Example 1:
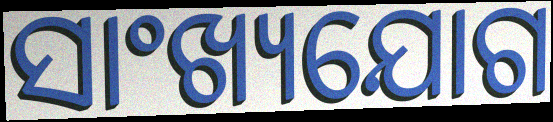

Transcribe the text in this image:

ସାଂଖ୍ୟଯୋଗ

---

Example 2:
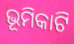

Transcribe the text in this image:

ଭୂମିକାଟି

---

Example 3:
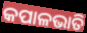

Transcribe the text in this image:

କପାଳଭାତି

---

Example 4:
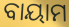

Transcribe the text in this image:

ବାୟାମ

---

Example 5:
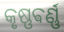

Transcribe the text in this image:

କୃଷ୍ଣଵର୍ଣ୍ଣ